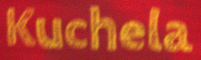
Kuchela